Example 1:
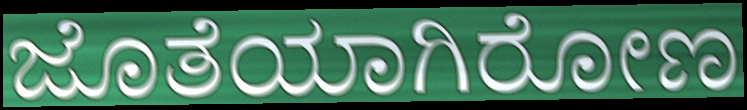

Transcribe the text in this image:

ಜೊತೆಯಾಗಿರೋಣ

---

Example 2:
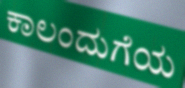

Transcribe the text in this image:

ಕಾಲಂದುಗೆಯ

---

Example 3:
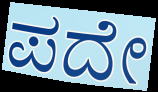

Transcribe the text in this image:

ಪದೇ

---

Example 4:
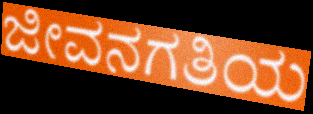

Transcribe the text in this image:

ಜೀವನಗತಿಯ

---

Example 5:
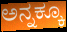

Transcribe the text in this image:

ಅನ್ನಕ್ಕೂ